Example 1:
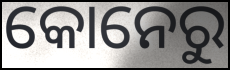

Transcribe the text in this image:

କୋନେରୁ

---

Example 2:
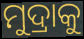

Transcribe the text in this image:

ମୁଦ୍ରାକୁ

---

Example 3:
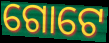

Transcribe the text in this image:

ଗୋଟେ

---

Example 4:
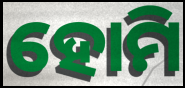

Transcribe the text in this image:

ହୋମି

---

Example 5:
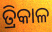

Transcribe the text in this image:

ତ୍ରିକାଳ